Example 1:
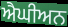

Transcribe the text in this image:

ਐਘੀਅਨ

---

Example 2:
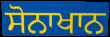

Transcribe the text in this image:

ਸੋਨਾਖਾਨ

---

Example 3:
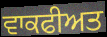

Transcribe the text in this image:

ਵਾਕਫੀਅਤ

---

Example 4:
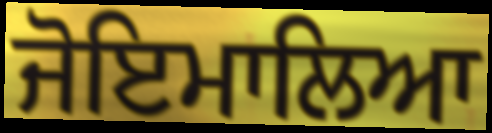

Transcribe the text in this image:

ਜੋਇਮਾਲਿਆ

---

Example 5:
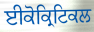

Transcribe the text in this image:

ਈਕੋਕ੍ਰਿਟਿਕਲ